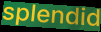
splendid